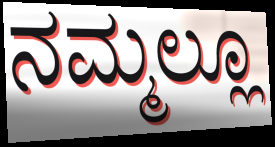
ನಮ್ಮಲ್ಲೂ